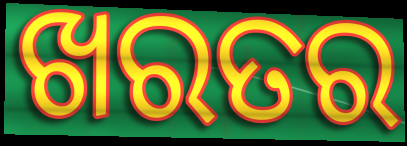
ଖରତର